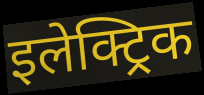
इलेक्ट्रिक